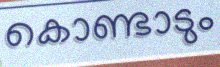
കൊണ്ടാടും